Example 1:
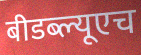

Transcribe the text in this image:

बीडब्ल्यूएच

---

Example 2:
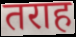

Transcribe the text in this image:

तराह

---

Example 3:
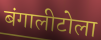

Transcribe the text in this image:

बंगालीटोला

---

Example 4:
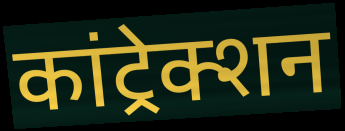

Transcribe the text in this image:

कांट्रेक्शन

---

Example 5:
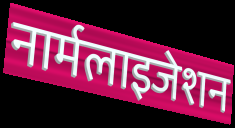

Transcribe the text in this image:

नार्मलाइजेशन